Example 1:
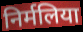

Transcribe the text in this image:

निर्मलिया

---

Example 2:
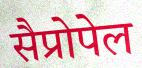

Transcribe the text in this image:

सैप्रोपेल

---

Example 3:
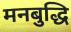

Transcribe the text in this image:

मनबुद्धि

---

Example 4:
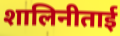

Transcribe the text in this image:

शालिनीताई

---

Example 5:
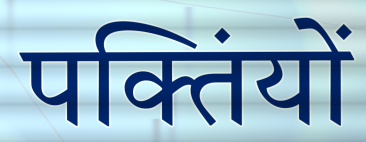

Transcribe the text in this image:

पक्तिंयों